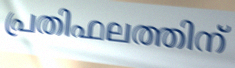
പ്രതിഫലത്തിന്